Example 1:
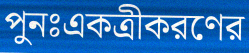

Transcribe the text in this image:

পুনঃএকত্রীকরণের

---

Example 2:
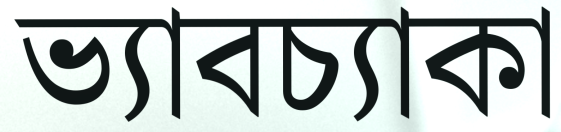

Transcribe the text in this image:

ভ্যাবচ্যাকা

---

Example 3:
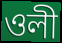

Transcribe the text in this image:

ওলী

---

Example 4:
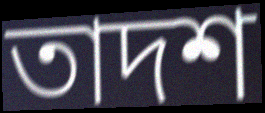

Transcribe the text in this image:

তাদশ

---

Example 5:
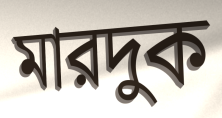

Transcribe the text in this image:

মারদুক